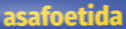
asafoetida